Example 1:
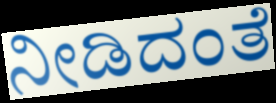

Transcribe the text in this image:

ನೀಡಿದಂತೆ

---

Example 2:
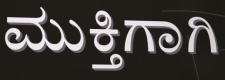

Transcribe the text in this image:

ಮುಕ್ತಿಗಾಗಿ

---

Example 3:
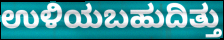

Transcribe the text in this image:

ಉಳಿಯಬಹುದಿತ್ತು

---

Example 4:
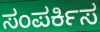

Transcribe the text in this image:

ಸಂಪರ್ಕಿಸ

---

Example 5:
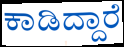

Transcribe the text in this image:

ಕಾಡಿದ್ದಾರೆ